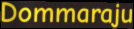
Dommaraju